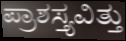
ಪ್ರಾಶಸ್ತ್ಯವಿತ್ತು